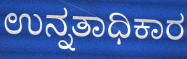
ಉನ್ನತಾಧಿಕಾರ